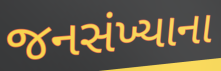
જનસંખ્યાના